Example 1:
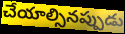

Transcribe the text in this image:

చేయాల్సినప్పుడు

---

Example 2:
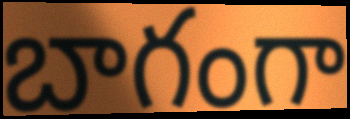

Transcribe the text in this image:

బాగంగా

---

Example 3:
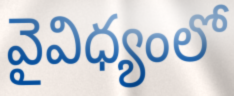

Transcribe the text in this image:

వైవిధ్యంలో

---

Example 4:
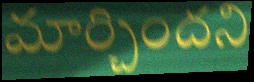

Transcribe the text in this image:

మార్చిందని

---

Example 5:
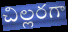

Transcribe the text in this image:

చిల్లరగా